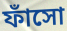
ফাঁসো